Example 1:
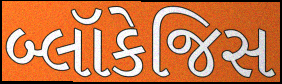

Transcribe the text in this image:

બ્લૉકેજિસ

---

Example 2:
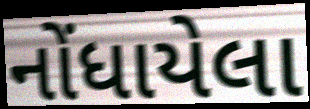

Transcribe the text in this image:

નોંધાયેલા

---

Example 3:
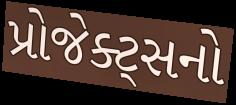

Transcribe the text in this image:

પ્રોજેક્ટ્સનો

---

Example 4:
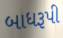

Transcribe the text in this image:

બાધરૂપી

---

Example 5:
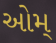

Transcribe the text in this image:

ઓમ્